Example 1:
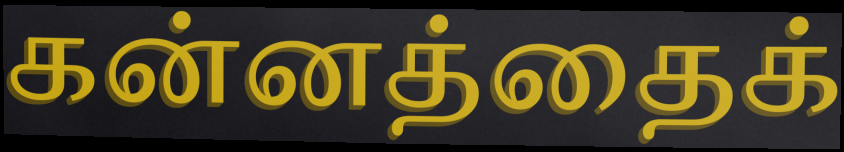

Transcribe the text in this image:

கன்னத்தைக்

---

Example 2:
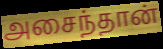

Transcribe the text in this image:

அசைந்தான்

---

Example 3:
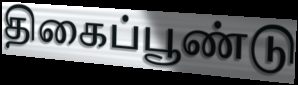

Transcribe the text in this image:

திகைப்பூண்டு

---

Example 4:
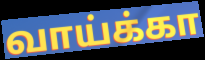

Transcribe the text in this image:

வாய்க்கா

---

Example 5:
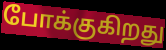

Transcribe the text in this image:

போக்குகிறது